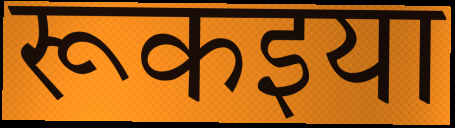
रूकइया